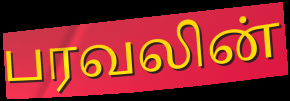
பரவலின்